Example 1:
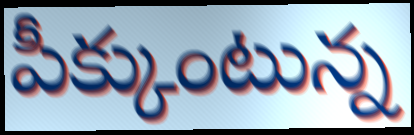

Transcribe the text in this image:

పీక్కుంటున్న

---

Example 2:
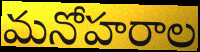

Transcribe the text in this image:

మనోహరాల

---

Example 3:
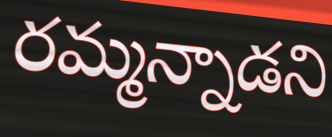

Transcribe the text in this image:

రమ్మన్నాడని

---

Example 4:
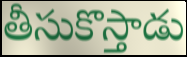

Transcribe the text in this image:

తీసుకొస్తాడు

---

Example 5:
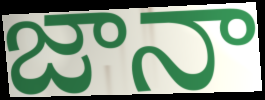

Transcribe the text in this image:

జానా